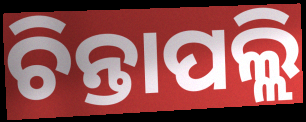
ଚିନ୍ତାପଲ୍ଲି